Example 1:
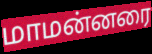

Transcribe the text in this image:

மாமன்னரை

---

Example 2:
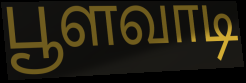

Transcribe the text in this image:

பூளவாடி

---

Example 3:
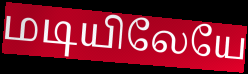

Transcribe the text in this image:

மடியிலேயே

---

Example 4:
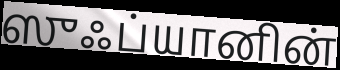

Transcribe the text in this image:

ஸுஃப்யானின்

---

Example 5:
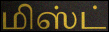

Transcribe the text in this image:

மிஸ்ட்